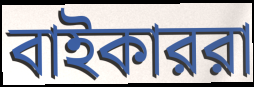
বাইকাররা